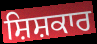
ਸ਼ਿਸ਼ਕਾਰ